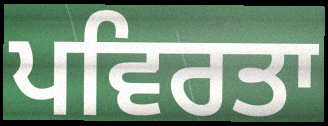
ਪਵਿਰਤਾ